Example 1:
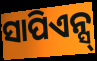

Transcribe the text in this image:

ସାପିଏନ୍ସ୍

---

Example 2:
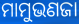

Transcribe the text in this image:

ମାମୁଭଣଜା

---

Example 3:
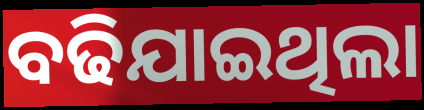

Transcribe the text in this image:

ବଢିଯାଇଥିଲା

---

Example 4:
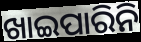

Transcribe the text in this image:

ଖାଇପାରିନି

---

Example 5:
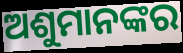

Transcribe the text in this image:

ଅଶୁମାନଙ୍କର